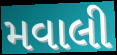
મવાલી